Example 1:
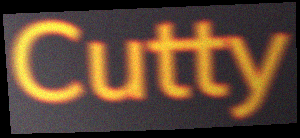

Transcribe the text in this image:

Cutty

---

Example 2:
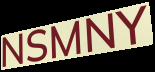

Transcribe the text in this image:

NSMNY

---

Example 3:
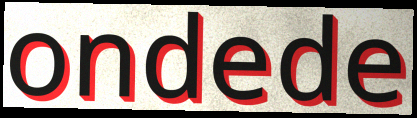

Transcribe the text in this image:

ondede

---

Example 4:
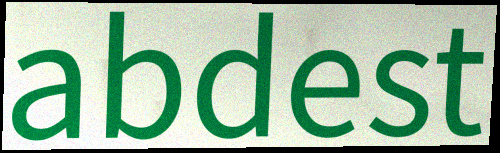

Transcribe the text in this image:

abdest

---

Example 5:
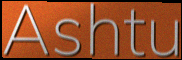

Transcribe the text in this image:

Ashtu